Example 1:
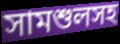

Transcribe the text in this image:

সামশুলসহ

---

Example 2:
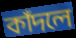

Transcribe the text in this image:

কাঁদলে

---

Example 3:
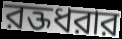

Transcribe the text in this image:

রক্তধরার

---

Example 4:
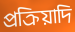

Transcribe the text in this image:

প্রক্রিয়াদি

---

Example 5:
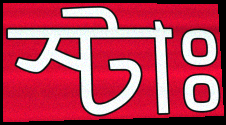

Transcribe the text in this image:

স্টাঃ